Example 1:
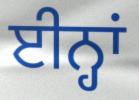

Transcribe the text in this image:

ਈਨ੍ਹਾਂ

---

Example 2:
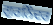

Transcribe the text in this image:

ਗੁਰਨਿੰਦਰ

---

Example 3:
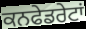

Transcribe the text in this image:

ਕਨਫੇਡਰੇਟਾਂ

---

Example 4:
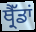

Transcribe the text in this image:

ਥ੍ਰੈੱਡਾਂ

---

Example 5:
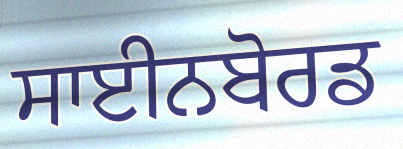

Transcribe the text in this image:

ਸਾਈਨਬੋਰਡ